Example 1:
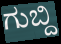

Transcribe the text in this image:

ಗುಬ್ದಿ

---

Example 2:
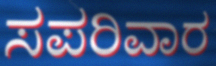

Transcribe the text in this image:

ಸಪರಿವಾರ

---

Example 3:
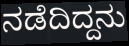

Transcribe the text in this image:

ನಡೆದಿದ್ದನು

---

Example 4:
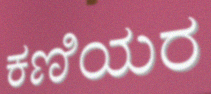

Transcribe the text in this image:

ಕಣಿಯರ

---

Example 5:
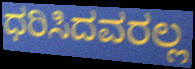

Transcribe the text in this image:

ಧರಿಸಿದವರಲ್ಲ